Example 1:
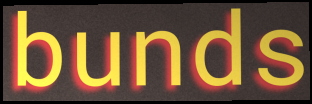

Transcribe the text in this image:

bunds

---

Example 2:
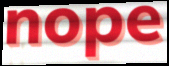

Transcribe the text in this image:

nope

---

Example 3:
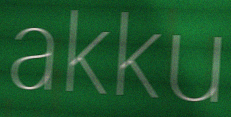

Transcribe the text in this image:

akku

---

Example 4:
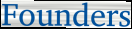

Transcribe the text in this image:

Founders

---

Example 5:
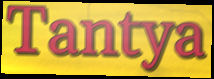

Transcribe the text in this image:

Tantya